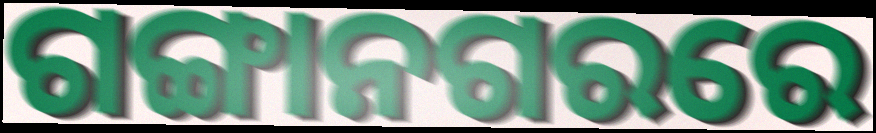
ଗଙ୍ଗାନଗରରେ